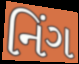
નિંગ